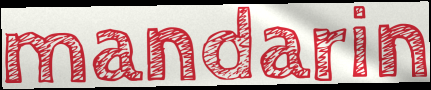
mandarin